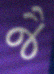
જૈ